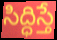
సిద్ధిస్తే